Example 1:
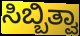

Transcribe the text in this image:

ಸಿಬ್ಬಿತ್ವಾ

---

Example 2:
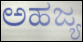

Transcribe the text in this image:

ಅಹಜ್ಯ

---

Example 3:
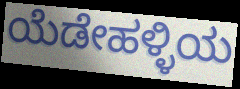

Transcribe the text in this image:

ಯೆಡೇಹಳ್ಳಿಯ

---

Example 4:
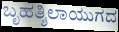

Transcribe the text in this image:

ಬೃಹತ್ಶಿಲಾಯುಗದ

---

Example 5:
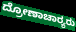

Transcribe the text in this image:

ದ್ರೋಣಾಚಾರ‍್ಯರು